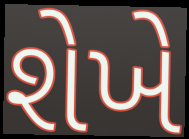
શેખે